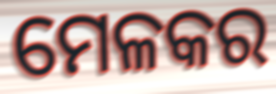
ମେଳକର